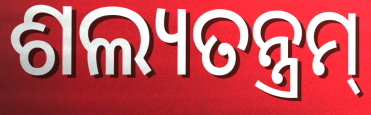
ଶଲ୍ୟତନ୍ତ୍ରମ୍